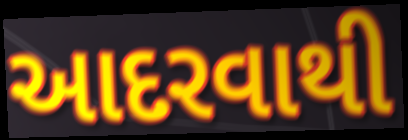
આદરવાથી